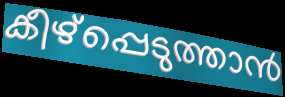
കീഴ്പ്പെടുത്താൻ